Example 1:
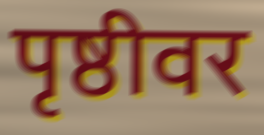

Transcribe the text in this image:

पृष्ठीवर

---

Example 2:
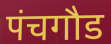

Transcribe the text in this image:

पंचगौड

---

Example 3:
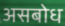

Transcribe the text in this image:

असबोध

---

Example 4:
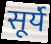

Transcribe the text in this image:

सूर्य॑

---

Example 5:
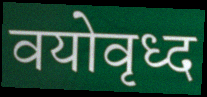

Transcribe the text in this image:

वयोवृध्द